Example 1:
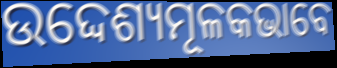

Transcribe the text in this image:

ଉଦ୍ଦେଶ୍ୟମୂଳକଭାବେ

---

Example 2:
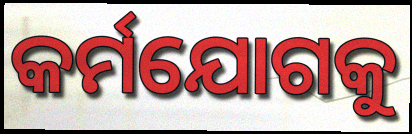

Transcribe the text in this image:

କର୍ମଯୋଗକୁ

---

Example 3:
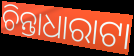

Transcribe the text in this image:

ଚିନ୍ତାଧାରାଟା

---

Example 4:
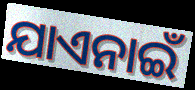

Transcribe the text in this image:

ଯାଏନାଇଁ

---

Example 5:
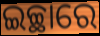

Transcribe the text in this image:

ଇଚ୍ଛାରେ